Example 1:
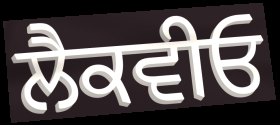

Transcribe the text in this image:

ਲੈਕਵੀਓ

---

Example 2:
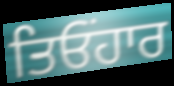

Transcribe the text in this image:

ਤਿਓਂਹਾਰ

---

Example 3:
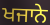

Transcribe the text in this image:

ਖਜਾਨੇ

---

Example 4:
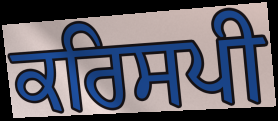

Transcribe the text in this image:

ਕਰਿਸਪੀ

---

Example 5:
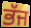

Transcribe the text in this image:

ਭੱਜ